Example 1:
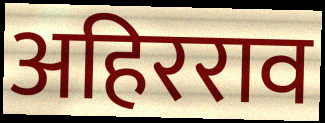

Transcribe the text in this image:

अहिरराव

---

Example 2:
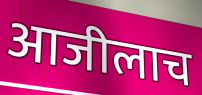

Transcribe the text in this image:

आजीलाच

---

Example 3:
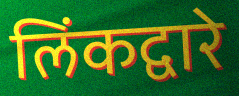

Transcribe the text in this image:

लिंकद्वारे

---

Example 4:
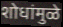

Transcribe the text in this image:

शोधांमुळे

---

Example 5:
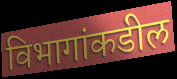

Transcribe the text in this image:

विभागांकडील